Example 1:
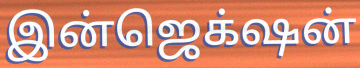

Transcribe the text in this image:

இன்ஜெக்‌ஷன்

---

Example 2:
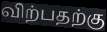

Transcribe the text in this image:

விற்பதற்கு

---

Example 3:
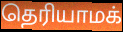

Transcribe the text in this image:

தெரியாமக்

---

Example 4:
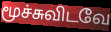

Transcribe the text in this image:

மூச்சுவிடவே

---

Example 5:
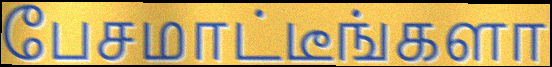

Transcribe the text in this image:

பேசமாட்டீங்களா